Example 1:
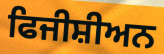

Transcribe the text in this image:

ਫਿਜੀਸ਼ੀਅਨ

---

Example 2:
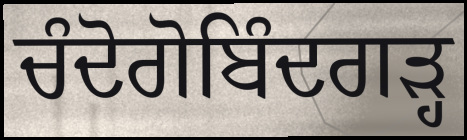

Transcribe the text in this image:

ਚੰਦੋਗੋਬਿੰਦਗੜ੍ਹ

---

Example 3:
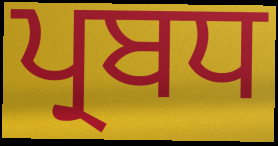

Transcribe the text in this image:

ਪ੍ਰਬਧ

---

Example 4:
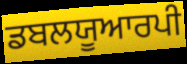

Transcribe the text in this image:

ਡਬਲਯੂਆਰਪੀ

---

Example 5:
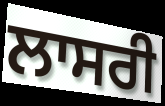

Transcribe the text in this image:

ਲਾਸਰੀ